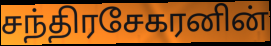
சந்திரசேகரனின்